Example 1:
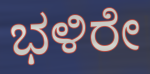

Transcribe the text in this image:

ಭಳಿರೇ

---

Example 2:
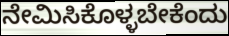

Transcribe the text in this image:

ನೇಮಿಸಿಕೊಳ್ಳಬೇಕೆಂದು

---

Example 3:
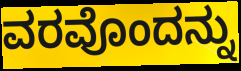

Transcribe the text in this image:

ವರವೊಂದನ್ನು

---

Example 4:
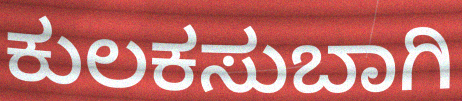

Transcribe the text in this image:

ಕುಲಕಸುಬಾಗಿ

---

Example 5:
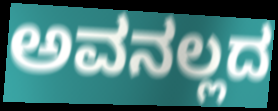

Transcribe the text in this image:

ಅವನಲ್ಲದ